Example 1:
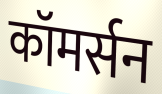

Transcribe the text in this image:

कॉमर्सन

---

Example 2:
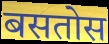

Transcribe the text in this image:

बसतोस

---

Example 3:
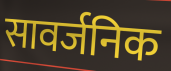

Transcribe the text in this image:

सावर्जनिक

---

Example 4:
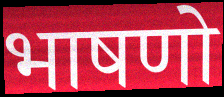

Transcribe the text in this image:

भाषणो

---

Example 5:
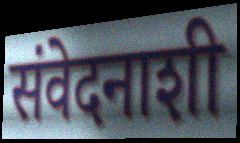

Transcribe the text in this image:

संवेदनाशी